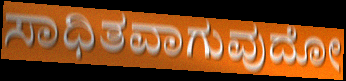
ಸಾಧಿತವಾಗುವುದೋ